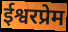
ईश्वरप्रेम